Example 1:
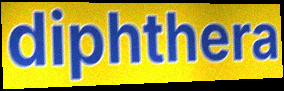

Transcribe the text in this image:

diphthera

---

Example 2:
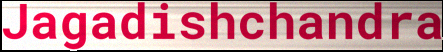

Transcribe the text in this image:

Jagadishchandra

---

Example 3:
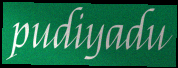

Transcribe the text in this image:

pudiyadu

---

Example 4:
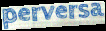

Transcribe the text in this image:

perversa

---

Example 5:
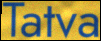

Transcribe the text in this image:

Tatva